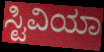
ಸ್ಟಿವಿಯಾ